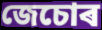
জেচোৰ